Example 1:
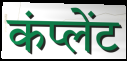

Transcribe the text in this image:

कंप्लेंट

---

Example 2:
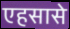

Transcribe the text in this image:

एहसासे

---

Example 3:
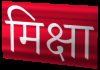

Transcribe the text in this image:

मिक्षा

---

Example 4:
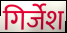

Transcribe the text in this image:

गिर्जेश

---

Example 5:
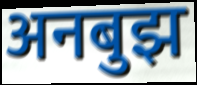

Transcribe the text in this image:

अनबुझ